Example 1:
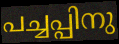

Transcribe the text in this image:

പച്ചപ്പിനു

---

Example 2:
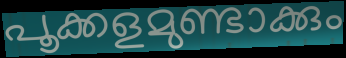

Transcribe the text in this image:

പൂക്കളമുണ്ടാക്കും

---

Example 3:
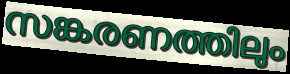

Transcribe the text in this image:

സങ്കരണത്തിലും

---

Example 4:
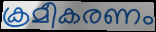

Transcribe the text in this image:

ക്രമീകരണം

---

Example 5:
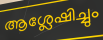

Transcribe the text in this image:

ആശ്ലേഷിച്ചും